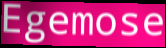
Egemose